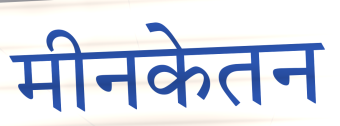
मीनकेतन